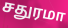
சதுரமா